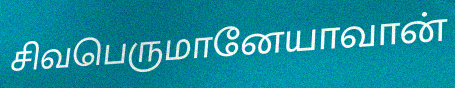
சிவபெருமானேயாவான்